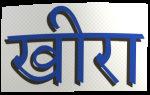
खीरा